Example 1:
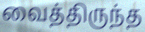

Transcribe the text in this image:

வைத்திருந்த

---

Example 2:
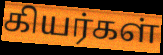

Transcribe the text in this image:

கியர்கள்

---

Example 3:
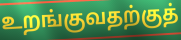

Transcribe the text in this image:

உறங்குவதற்குத்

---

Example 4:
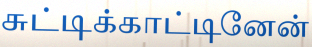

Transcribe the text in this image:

சுட்டிக்காட்டினேன்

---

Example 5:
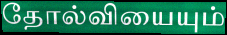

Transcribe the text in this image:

தோல்வியையும்